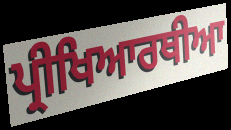
ਪ੍ਰੀਖਿਆਰਥੀਆ